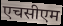
एचसीएम